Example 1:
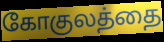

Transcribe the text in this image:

கோகுலத்தை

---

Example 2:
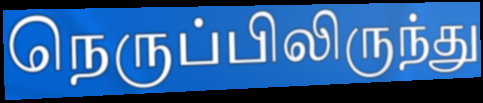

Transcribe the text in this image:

நெருப்பிலிருந்து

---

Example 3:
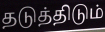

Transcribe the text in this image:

தடுத்திடும்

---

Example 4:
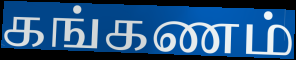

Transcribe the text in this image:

கங்கணம்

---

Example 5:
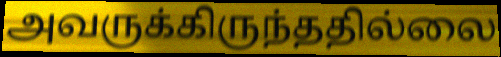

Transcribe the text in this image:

அவருக்கிருந்ததில்லை